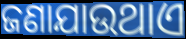
ଜଣାଯାଉଥାଏ